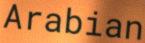
Arabian